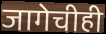
जागेचीही